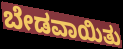
ಬೇಡವಾಯಿತು